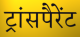
ट्रांसपैरेंट